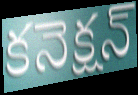
కనెక్షన్